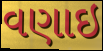
વણાઇ